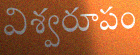
విశ్వరూపం